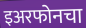
इअरफोनचा